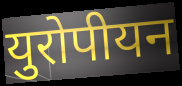
युरोपीयन